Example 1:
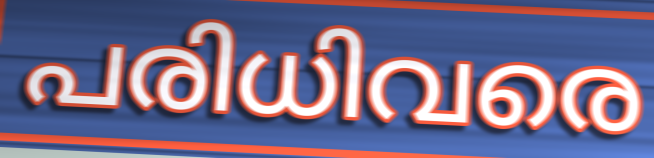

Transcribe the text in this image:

പരിധിവരെ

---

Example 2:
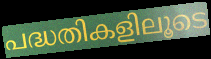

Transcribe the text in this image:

പദ്ധതികളിലൂടെ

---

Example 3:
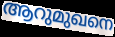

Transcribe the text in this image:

ആറുമുഖനെ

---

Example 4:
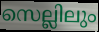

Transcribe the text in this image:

സെല്ലിലും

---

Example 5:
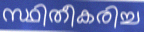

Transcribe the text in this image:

സ്ഥിതീകരിച്ച